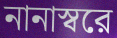
নানাস্বরে